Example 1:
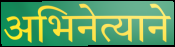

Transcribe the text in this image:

अभिनेत्याने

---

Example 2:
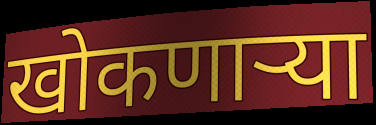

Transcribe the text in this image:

खोकणाऱ्या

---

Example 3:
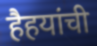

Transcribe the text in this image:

हैहयांची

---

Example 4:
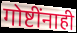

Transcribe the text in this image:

गोष्टींनाही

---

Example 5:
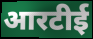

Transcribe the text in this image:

आरटीई